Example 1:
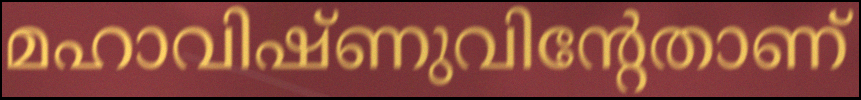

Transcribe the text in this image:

മഹാവിഷ്ണുവിന്റേതാണ്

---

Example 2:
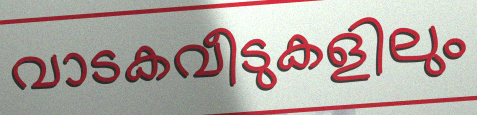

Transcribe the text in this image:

വാടകവീടുകളിലും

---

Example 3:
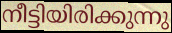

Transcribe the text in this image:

നീട്ടിയിരിക്കുന്നു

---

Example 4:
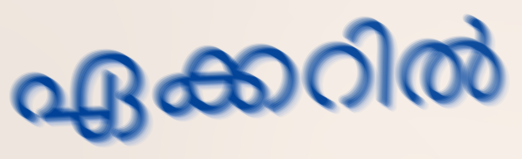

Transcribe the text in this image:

ഏക്കറിൽ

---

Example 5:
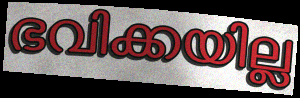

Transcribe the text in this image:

ഭവിക്കയില്ല